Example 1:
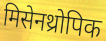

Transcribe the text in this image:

मिसेनथ्रोपिक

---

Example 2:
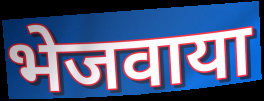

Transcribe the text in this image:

भेजवाया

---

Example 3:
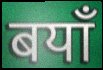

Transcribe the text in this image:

बयाँ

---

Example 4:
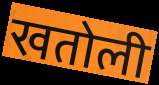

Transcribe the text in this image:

खतोली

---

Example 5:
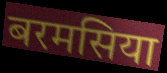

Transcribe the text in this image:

बरमसिया